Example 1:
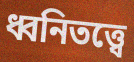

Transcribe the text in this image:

ধ্বনিতত্ত্বে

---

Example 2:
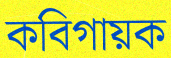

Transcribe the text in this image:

কবিগায়ক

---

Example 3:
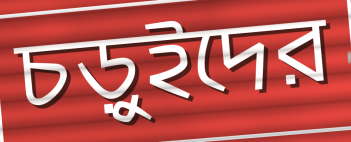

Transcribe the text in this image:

চড়ুইদের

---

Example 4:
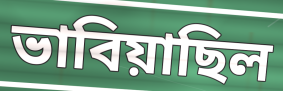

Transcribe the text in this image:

ভাবিয়াছিল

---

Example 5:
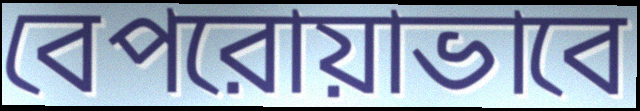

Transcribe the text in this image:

বেপরোয়াভাবে